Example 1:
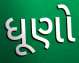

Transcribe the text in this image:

ધૂણો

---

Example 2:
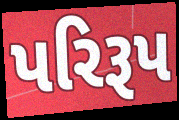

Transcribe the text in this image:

પરિરૂપ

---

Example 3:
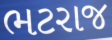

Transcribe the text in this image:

ભટરાજ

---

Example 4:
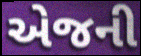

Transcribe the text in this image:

એજની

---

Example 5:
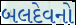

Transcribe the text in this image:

બલદેવનો